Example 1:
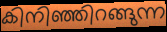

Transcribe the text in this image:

കിനിഞ്ഞിറങ്ങുന്ന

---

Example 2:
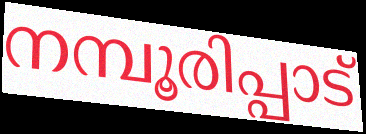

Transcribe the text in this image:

നമ്പൂരിപ്പാട്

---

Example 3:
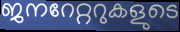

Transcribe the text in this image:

ജനറേറ്ററുകളുടെ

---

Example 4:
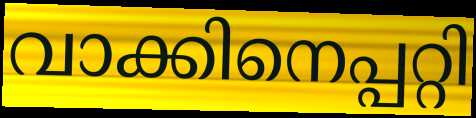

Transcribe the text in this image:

വാക്കിനെപ്പറ്റി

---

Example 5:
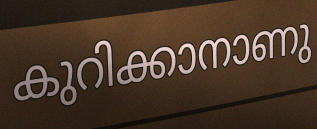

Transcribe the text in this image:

കുറിക്കാനാണു